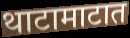
थाटामाटात